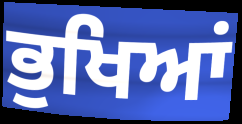
ਭੁਖਿਆਂ